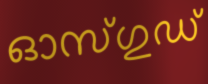
ഓസ്ഗുഡ്